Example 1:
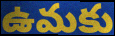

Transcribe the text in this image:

ఉమకు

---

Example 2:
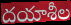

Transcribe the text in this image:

దయాశీల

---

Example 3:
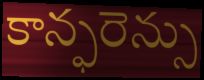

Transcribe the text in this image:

కాన్ఫరెన్సు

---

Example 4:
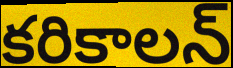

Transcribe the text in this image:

కరికాలన్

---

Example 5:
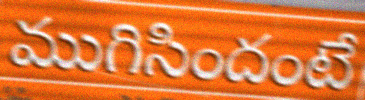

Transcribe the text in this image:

ముగిసిందంటే